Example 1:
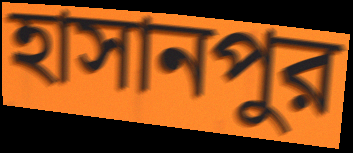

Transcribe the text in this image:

হাসানপুর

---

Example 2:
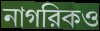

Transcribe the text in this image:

নাগরিকও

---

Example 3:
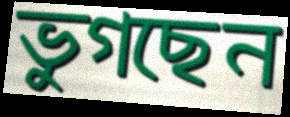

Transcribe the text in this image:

ভুগছেন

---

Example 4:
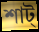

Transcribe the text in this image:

শাট্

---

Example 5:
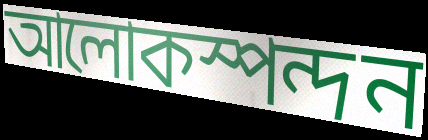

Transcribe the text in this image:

আলোকস্পন্দন